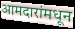
आमदारांमधून